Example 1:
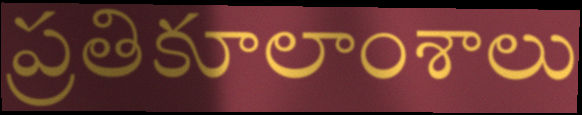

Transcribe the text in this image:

ప్రతికూలాంశాలు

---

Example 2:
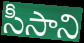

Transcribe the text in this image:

సీసాని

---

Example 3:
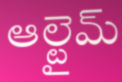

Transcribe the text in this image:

ఆల్టైమ్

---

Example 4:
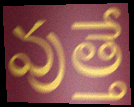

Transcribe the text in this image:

వుత్తే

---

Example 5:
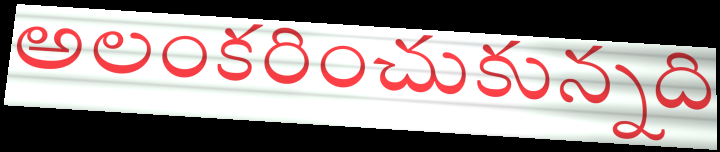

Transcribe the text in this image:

అలంకరించుకున్నది